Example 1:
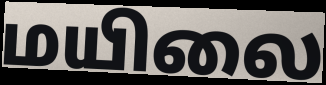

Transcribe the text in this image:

மயிலை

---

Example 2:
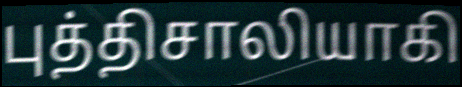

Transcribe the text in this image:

புத்திசாலியாகி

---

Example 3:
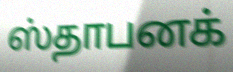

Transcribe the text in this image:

ஸ்தாபனக்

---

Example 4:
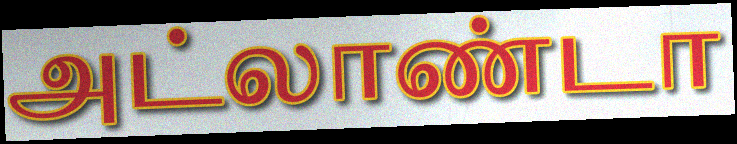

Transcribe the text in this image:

அட்லாண்டா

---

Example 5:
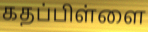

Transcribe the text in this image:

கதப்பிள்ளை